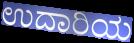
ಉದಾರಿಯ